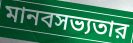
মানবসভ্যতার